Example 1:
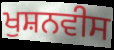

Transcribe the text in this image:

ਖੁਸ਼ਨਵੀਸ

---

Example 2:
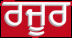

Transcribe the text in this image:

ਰਜੂਰ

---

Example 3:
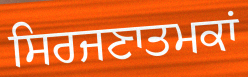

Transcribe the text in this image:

ਸਿਰਜਣਾਤਮਕਾਂ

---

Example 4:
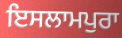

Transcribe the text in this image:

ਇਸਲਾਮਪੁਰਾ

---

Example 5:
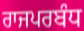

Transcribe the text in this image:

ਰਾਜਪਰਬੰਧ